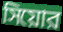
সিয়োর